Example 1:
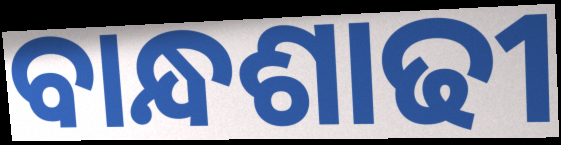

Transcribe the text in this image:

ବାନ୍ଧଶାଢୀ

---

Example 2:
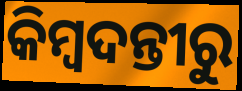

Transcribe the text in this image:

କିମ୍ବଦନ୍ତୀରୁ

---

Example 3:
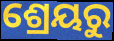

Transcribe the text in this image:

ଶ୍ରେୟରୁ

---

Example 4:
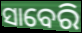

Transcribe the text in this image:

ସାବେରି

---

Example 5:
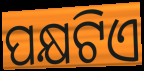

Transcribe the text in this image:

ପକ୍ଷଟିଏ